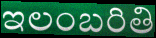
ఇలంబరితి